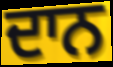
ਦਾਨ